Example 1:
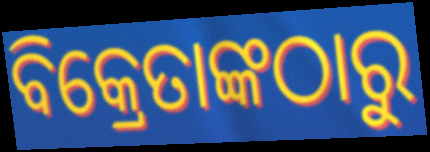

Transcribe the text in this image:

ବିକ୍ରେତାଙ୍କଠାରୁ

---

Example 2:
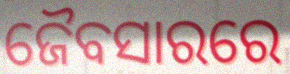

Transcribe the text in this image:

ଜୈବସାରରେ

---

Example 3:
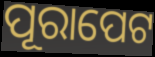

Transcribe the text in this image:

ପୂରାପେଟ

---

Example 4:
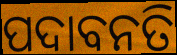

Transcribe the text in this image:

ପଦାବନତି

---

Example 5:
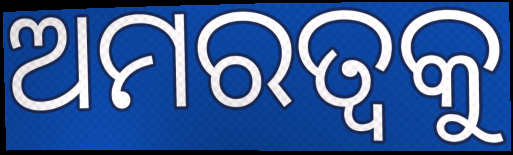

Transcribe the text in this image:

ଅମରତ୍ୱକୁ